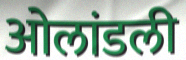
ओलांडली